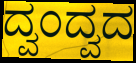
ದ್ವಂದ್ವದ